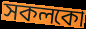
সকলকো